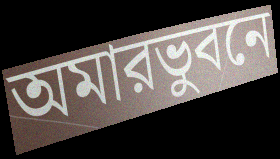
অমারভুবনে